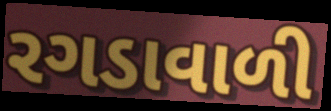
રગડાવાળી